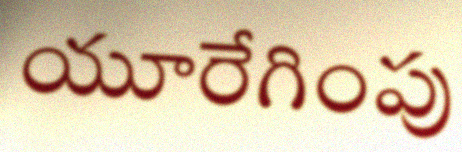
యూరేగింపు